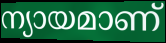
ന്യായമാണ്